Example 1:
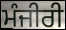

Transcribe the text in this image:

ਮੰਜੀਰੀ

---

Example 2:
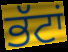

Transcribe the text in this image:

ਭੱਟਾਂ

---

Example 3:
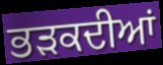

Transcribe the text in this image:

ਭੜਕਦੀਆਂ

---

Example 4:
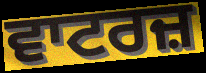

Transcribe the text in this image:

ਵਾਟਰਜ਼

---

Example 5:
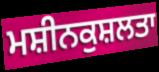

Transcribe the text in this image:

ਮਸ਼ੀਨਕੁਸ਼ਲਤਾ